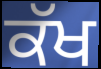
ਕੱਖ